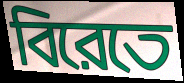
বিরেতে